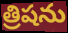
త్రిషను